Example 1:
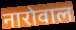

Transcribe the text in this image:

नारोवाल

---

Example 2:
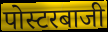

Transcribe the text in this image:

पोस्टरबाजी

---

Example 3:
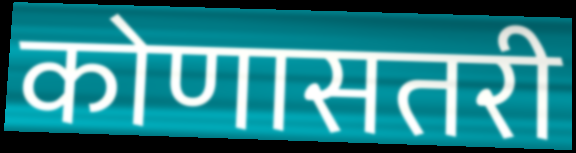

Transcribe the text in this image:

कोणासतरी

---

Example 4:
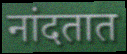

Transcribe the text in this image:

नांदतात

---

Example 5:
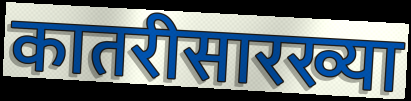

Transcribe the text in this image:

कातरीसारख्या